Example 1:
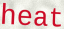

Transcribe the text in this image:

heat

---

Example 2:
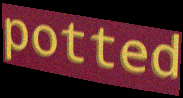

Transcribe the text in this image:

potted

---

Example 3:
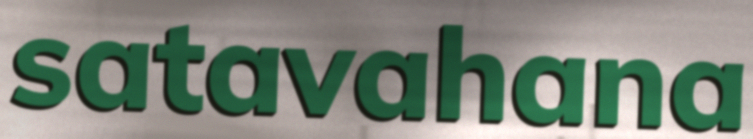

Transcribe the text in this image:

satavahana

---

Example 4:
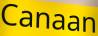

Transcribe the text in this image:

Canaan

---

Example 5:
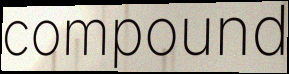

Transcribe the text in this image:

compound